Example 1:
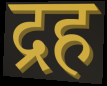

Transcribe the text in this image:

द्रह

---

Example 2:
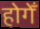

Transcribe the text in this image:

होगेँ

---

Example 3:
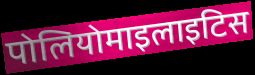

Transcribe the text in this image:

पोलियोमाइलाइटिस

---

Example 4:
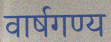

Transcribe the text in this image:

वार्षगण्य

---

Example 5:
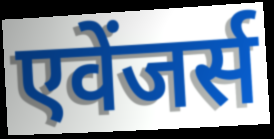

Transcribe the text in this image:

एवेंजर्स